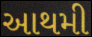
આથમી